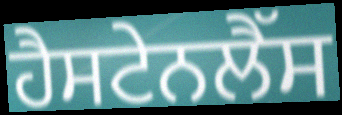
ਹੈਸਟੇਨਲੈੱਸ